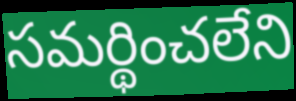
సమర్థించలేని